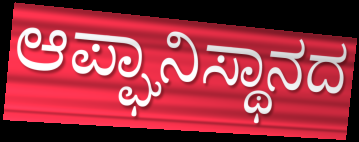
ಆಪ್ಘಾನಿಸ್ಥಾನದ